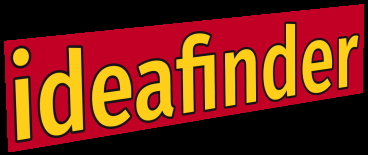
ideafinder